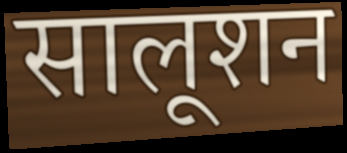
सालूशन